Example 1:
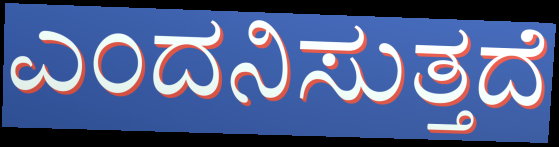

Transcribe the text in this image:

ಎಂದನಿಸುತ್ತದೆ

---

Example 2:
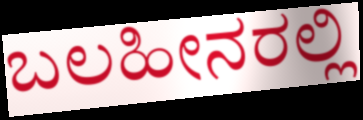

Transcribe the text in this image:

ಬಲಹೀನರಲ್ಲಿ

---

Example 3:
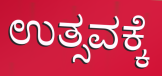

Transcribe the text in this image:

ಉತ್ಸವಕ್ಕೆ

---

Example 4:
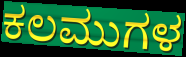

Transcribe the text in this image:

ಕಲಮುಗಳ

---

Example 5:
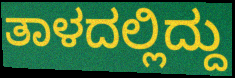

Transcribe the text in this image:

ತಾಳದಲ್ಲಿದ್ದು